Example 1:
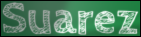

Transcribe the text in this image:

Suarez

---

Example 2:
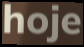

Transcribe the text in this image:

hoje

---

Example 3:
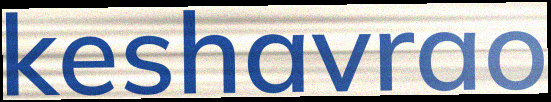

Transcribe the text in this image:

keshavrao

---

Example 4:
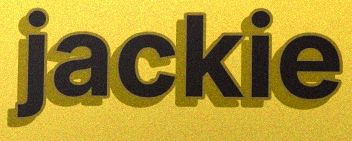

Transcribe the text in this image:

jackie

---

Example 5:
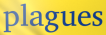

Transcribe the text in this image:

plagues